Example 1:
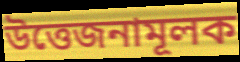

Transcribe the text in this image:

উত্তেজনামূলক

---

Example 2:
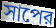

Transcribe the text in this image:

সাপের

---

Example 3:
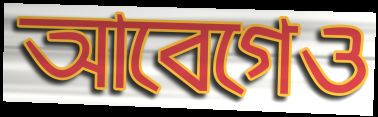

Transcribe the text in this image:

আবেগেও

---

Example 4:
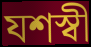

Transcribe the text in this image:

যশস্বী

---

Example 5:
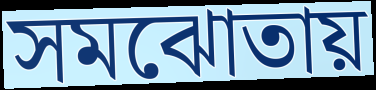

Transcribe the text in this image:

সমঝোতায়